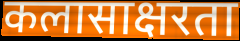
कलासाक्षरता